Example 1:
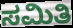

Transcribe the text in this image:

ಸಮಿತಿ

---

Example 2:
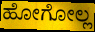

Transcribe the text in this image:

ಹೋಗೋಲ್ಲ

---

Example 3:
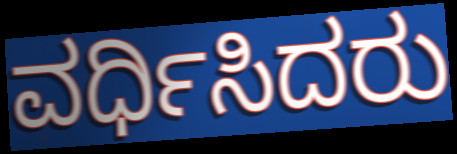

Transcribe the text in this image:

ವರ್ಧಿಸಿದರು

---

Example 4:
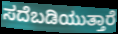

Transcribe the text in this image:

ಸದೆಬಡಿಯುತ್ತಾರೆ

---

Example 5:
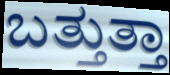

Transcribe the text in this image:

ಬತ್ತುತ್ತಾ